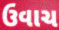
ઉવાચ